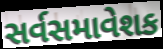
સર્વસમાવેશક